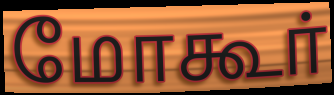
மோகூர்